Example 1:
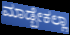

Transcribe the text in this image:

ಮಾಡ್ಬೇಕಲ್ಲಾ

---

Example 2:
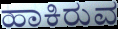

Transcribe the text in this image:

ಹಾಕಿರುವ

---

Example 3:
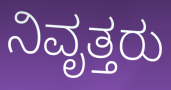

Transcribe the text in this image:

ನಿವೃತ್ತರು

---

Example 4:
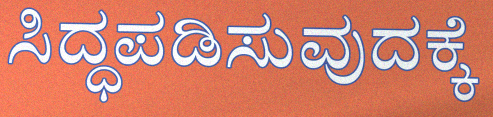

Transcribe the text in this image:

ಸಿದ್ಧಪಡಿಸುವುದಕ್ಕೆ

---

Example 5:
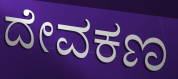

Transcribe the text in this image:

ದೇವಕಣ